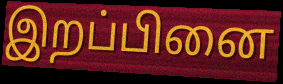
இறப்பினை